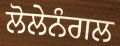
ਲੋਲੇਨੰਗਲ